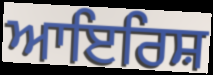
ਆਇਰਿਸ਼